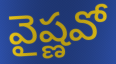
వైష్ణవో